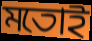
মতোই